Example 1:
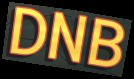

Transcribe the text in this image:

DNB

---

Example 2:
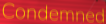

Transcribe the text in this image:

Condemned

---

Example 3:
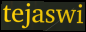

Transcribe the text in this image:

tejaswi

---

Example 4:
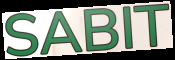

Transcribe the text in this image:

SABIT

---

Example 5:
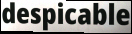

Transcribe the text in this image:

despicable